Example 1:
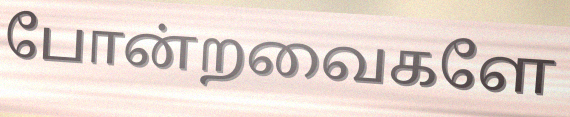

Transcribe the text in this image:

போன்றவைகளே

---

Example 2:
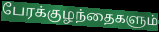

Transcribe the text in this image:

பேரக்குழந்தைகளும்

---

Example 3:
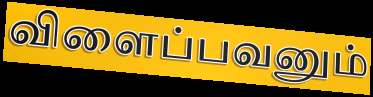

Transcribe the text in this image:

விளைப்பவனும்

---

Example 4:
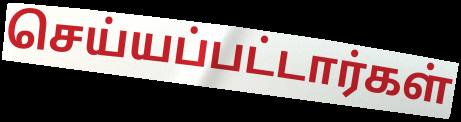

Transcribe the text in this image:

செய்யப்பட்டார்கள்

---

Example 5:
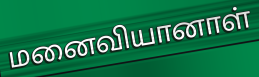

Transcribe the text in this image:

மனைவியானாள்